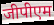
जीपीएम